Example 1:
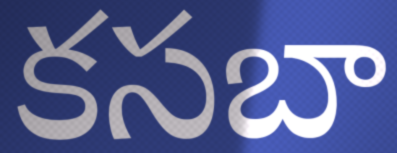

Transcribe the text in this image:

కసబా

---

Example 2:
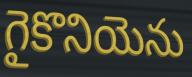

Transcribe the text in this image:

గైకొనియెను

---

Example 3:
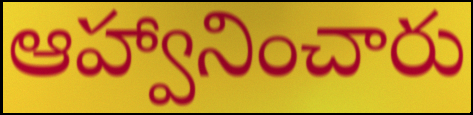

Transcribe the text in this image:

ఆహ్వానించారు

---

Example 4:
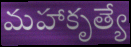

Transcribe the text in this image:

మహాకృత్యే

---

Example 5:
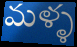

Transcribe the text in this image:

మళ్ళ